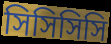
সিসিসিসি